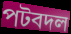
পটবদল